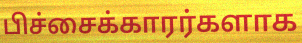
பிச்சைக்காரர்களாக